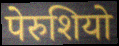
पेरुशियो